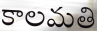
కాలమతి